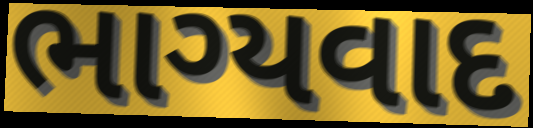
ભાગ્યવાદ